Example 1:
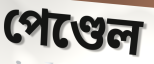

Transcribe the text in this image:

পেণ্ডেল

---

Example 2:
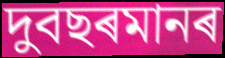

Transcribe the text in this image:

দুবছৰমানৰ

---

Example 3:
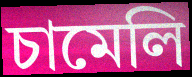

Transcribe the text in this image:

চামেলি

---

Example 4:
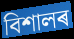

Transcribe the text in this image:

বিশালৰ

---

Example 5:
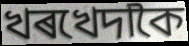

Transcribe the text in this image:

খৰখেদাকৈ